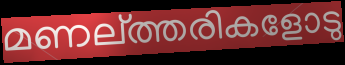
മണല്ത്തരികളോടു